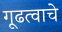
गूढत्वाचे